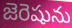
జెరెషును